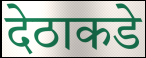
देठाकडे